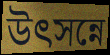
উৎসন্নে